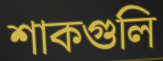
শাকগুলি